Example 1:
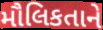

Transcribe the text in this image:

મૌલિકતાને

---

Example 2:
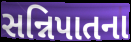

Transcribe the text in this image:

સન્નિપાતના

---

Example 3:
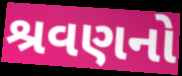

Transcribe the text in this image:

શ્રવણનો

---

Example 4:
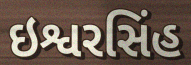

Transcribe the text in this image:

ઇશ્વરસિંહ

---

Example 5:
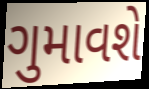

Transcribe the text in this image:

ગુમાવશે